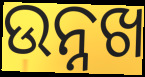
ଉନ୍ନଖ